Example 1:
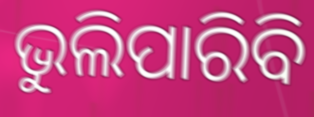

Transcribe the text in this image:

ଭୁଲିପାରିବି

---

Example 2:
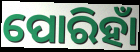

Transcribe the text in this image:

ପୋରିହାଁ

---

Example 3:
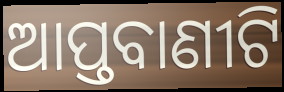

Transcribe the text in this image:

ଆପ୍ତବାଣୀଟି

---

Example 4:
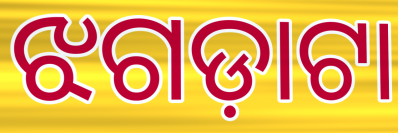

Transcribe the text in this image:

ଝଗଡ଼ାଟା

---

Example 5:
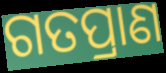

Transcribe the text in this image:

ଗତପ୍ରାଣ